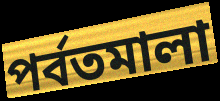
পর্বতমালা